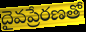
దైవప్రేరణతో